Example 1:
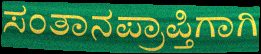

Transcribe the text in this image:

ಸಂತಾನಪ್ರಾಪ್ತಿಗಾಗಿ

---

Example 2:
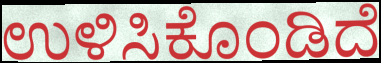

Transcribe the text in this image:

ಉಳಿಸಿಕೊಂಡಿದೆ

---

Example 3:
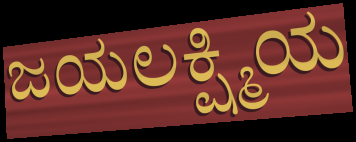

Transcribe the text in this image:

ಜಯಲಕ್ಷ್ಮಿಯ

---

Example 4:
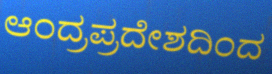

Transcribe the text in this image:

ಆಂದ್ರಪ್ರದೇಶದಿಂದ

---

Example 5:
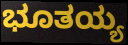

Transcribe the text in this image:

ಭೂತಯ್ಯ